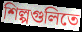
শিল্পগুলিতে